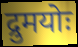
द्रुमयोः